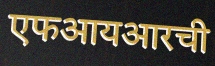
एफआयआरची